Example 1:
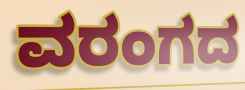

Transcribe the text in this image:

ವರಂಗದ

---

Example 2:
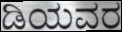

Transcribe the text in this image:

ಡಿಯವರ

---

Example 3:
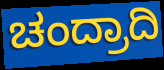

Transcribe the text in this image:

ಚಂದ್ರಾದಿ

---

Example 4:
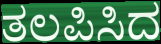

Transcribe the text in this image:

ತಲಪಿಸಿದ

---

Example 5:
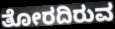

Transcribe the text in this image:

ತೋರದಿರುವ